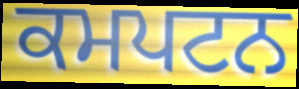
ਕਮਪਟਨ